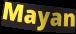
Mayan